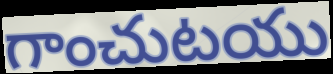
గాంచుటయు